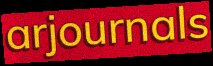
arjournals